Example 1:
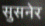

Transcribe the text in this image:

सुसनेर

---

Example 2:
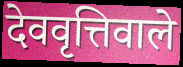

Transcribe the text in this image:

देववृत्तिवाले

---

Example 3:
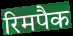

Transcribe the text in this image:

रिमपैक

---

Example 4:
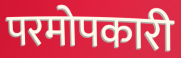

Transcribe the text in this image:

परमोपकारी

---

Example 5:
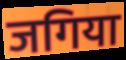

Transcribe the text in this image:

जगिया